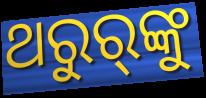
ଥରୁର୍‌ଙ୍କୁ